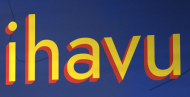
ihavu